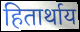
हितार्थाय